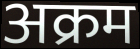
अक्रम